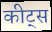
कीट्‌स